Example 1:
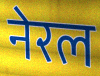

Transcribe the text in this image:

नेरल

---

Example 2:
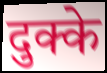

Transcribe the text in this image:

दुक्के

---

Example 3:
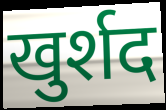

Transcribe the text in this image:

खुर्शद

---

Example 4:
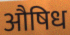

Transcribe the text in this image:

औषिध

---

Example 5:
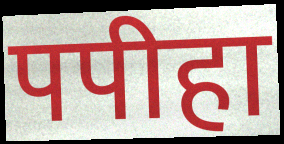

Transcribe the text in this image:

पपीहा